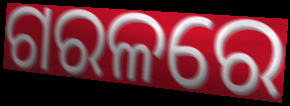
ଗରଳରେ